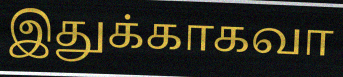
இதுக்காகவா